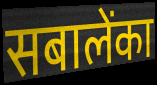
सबालेंका